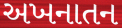
અખનાતન